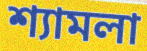
শ্যামলা